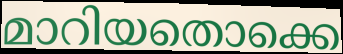
മാറിയതൊക്കെ